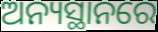
ଅନ୍ୟସ୍ଥାନରେ